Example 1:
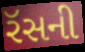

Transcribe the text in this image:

રૅસની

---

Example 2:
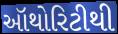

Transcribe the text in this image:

ઑથોરિટીથી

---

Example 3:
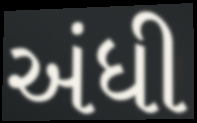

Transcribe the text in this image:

અંધી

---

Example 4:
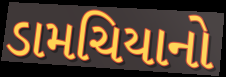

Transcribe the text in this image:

ડામચિયાનો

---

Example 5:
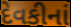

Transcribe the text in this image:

દેવકીનાં